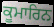
ਕੂਮਾਰਿਨ